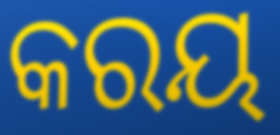
କରୟ